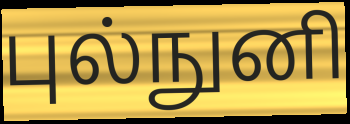
புல்நுனி